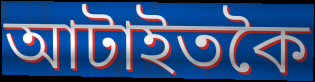
আটাইতকৈ